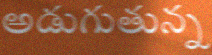
అడుగుతున్న